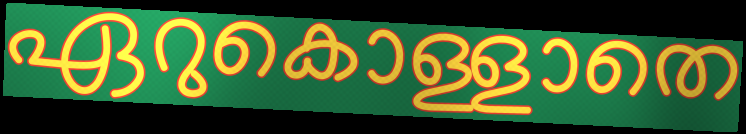
ഏറുകൊള്ളാതെ